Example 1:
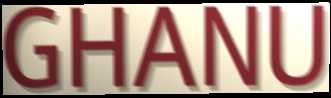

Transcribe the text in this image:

GHANU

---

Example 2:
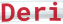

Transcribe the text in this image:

Deri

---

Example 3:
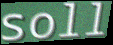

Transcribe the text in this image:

soll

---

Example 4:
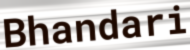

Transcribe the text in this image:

Bhandari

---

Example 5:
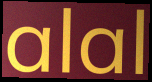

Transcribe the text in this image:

alal